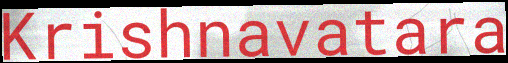
Krishnavatara